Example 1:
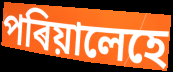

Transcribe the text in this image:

পৰিয়ালেহে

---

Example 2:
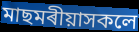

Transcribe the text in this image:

মাছমৰীয়াসকলে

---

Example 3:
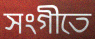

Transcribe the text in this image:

সংগীতে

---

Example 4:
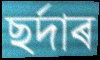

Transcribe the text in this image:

ছৰ্দাৰ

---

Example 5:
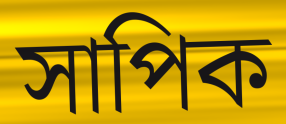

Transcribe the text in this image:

সাপিক